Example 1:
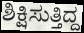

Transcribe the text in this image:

ಶಿಕ್ಷಿಸುತ್ತಿದ್ದ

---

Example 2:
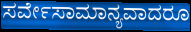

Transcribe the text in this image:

ಸರ್ವೇಸಾಮಾನ್ಯವಾದರೂ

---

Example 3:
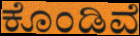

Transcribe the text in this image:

ಕೊಂಡಿವೆ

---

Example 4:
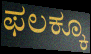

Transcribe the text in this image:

ಫಲಕ್ಕೂ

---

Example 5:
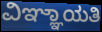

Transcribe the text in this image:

ವಿಞ್ಞಾಯತಿ